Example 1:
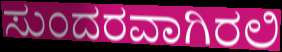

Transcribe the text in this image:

ಸುಂದರವಾಗಿರಲಿ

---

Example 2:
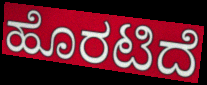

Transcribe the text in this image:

ಹೊರಟಿದೆ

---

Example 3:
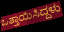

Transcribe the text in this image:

ಒತ್ತಾಯಿಸಿದ್ದಳು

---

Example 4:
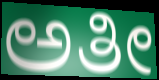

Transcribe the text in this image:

ಅತೀ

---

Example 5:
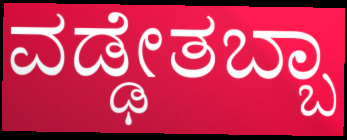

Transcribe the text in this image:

ವಡ್ಢೇತಬ್ಬಾ